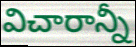
విచారాన్నీ